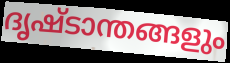
ദൃഷ്ടാന്തങ്ങളും